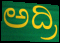
ಅದ್ರಿ